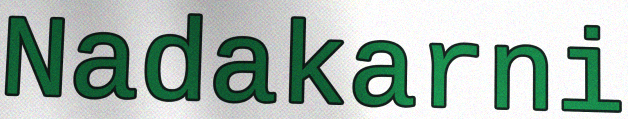
Nadakarni